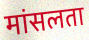
मांसलता